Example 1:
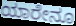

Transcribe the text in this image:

ಯಾರೇನೂ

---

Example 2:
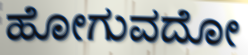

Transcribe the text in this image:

ಹೋಗುವದೋ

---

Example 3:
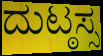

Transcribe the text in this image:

ದುಟ್ಠಸ್ಸ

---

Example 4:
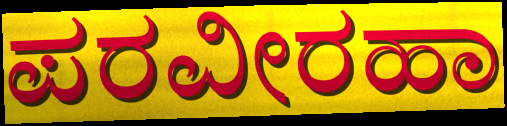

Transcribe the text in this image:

ಪರವೀರಹಾ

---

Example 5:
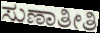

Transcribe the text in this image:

ಸುಣಾತೀತಿ